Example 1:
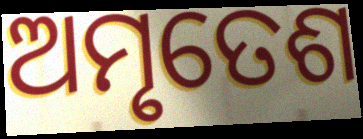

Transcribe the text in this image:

ଅମୃତେଶ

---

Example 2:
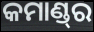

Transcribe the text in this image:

କମାଣ୍ଡ୍‌ର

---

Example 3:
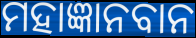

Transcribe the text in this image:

ମହାଜ୍ଞାନବାନ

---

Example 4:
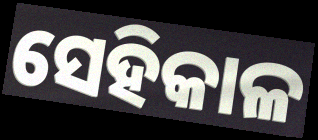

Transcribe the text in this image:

ସେହିକାଳ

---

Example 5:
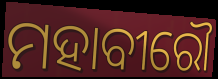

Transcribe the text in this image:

ମହାବୀରୌ